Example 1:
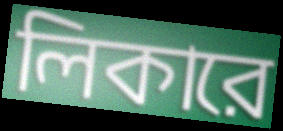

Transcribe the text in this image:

লিকারে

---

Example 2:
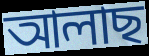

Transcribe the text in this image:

আলাছ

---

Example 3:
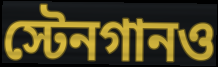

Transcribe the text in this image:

স্টেনগানও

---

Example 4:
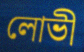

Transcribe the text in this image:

লোভী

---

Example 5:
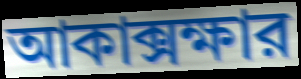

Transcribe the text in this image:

আকাক্সক্ষার